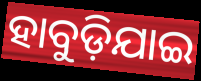
ହାବୁଡ଼ିଯାଇ